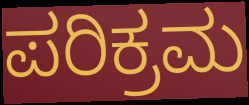
ಪರಿಕ್ರಮ